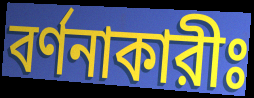
বর্ণনাকারীঃ